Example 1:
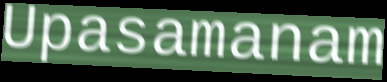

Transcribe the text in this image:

Upasamanam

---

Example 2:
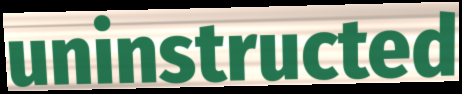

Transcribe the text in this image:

uninstructed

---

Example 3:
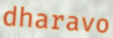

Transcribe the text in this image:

dharavo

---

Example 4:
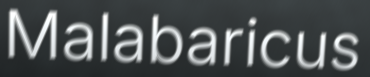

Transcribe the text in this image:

Malabaricus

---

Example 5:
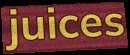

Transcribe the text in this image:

juices